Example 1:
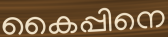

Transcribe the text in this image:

കൈപ്പിനെ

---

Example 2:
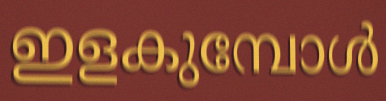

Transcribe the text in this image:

ഇളകുമ്പോൾ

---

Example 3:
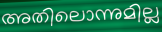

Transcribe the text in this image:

അതിലൊന്നുമില്ല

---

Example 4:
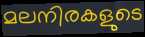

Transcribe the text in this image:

മലനിരകളുടെ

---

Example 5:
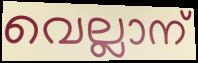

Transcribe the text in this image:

വെല്ലാന്